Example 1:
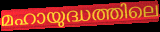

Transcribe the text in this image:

മഹായുദ്ധത്തിലെ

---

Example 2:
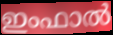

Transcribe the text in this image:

ഇംഫാൽ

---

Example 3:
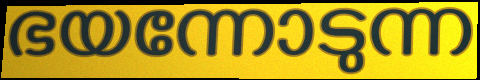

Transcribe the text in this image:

ഭയന്നോടുന്ന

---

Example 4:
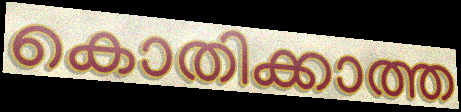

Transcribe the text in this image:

കൊതിക്കാത്ത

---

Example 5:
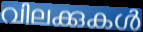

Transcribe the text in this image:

വിലക്കുകൾ